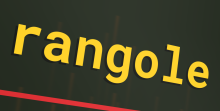
rangole